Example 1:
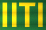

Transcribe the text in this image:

IITI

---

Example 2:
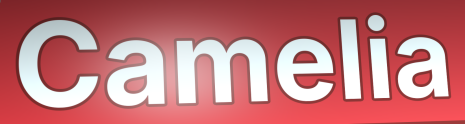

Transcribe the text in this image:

Camelia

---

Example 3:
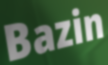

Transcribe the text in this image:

Bazin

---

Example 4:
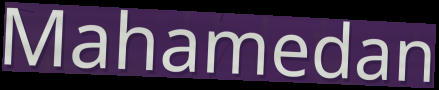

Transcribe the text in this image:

Mahamedan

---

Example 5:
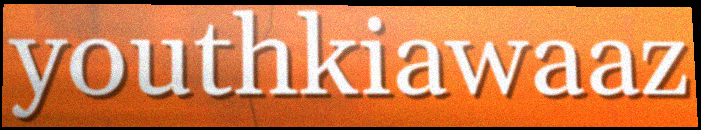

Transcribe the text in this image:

youthkiawaaz